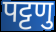
पट्टणु